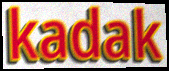
kadak